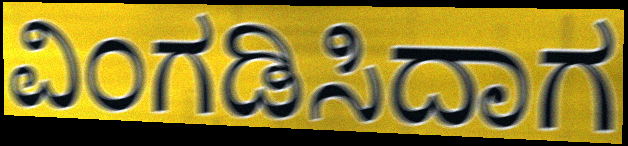
ವಿಂಗಡಿಸಿದಾಗ